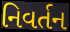
નિવર્તન